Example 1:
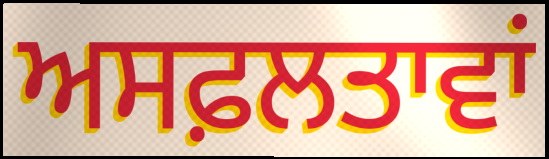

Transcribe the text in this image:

ਅਸਫ਼ਲਤਾਵਾਂ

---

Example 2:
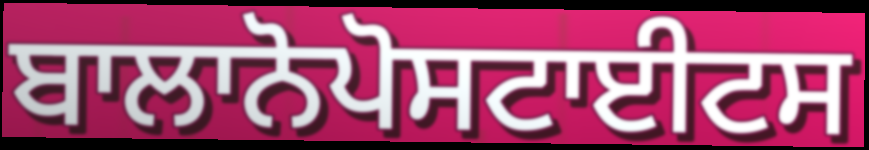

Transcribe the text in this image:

ਬਾਲਾਨੋਪੋਸਟਾਈਟਸ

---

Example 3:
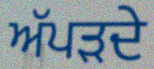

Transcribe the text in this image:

ਅੱਪੜਦੇ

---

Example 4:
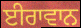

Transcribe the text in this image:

ਈਰਾਵਾਨ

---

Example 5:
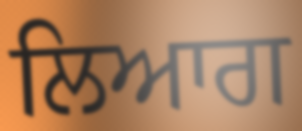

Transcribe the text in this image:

ਲਿਆਗ